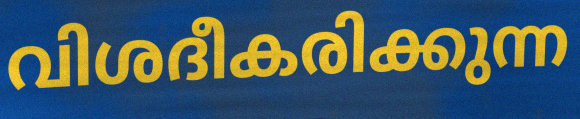
വിശദീകരിക്കുന്ന